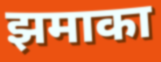
झमाका